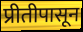
प्रीतीपासून